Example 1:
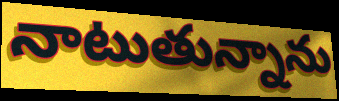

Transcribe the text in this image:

నాటుతున్నాను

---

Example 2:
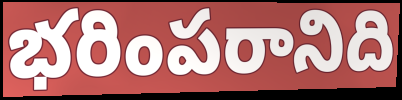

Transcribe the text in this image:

భరింపరానిది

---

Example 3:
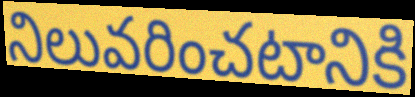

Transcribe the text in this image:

నిలువరించటానికి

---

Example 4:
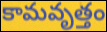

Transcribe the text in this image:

కామవృత్తం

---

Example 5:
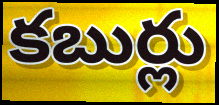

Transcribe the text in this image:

కబుర్లు